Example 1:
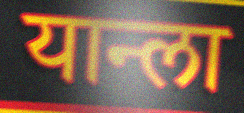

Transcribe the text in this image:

यान्ला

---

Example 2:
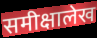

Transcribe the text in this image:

समीक्षालेख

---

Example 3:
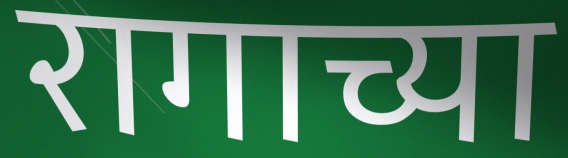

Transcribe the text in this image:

रागाच्या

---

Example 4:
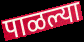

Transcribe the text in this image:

पाळल्या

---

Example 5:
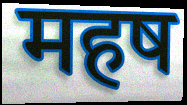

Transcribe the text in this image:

महष